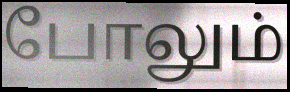
போலும்